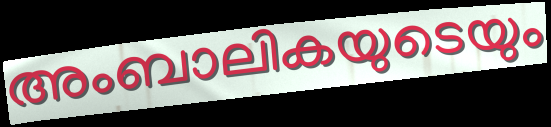
അംബാലികയുടെയും